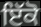
ਇੱਕੋ